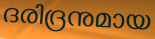
ദരിദ്രനുമായ